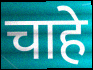
चाहे